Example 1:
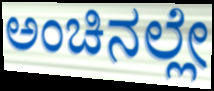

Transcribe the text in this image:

ಅಂಚಿನಲ್ಲೇ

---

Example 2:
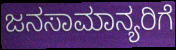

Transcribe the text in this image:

ಜನಸಾಮಾನ್ಯರಿಗೆ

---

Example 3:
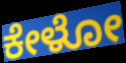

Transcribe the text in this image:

ಕೇಳೋ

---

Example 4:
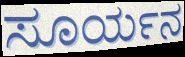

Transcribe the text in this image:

ಸೂರ್ಯನ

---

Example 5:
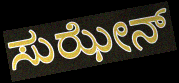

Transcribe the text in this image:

ಸುಝೇನ್